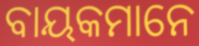
ବାୟକମାନେ